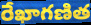
రేఖాగణిత